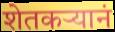
शेतकऱ्यानं